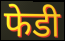
फेडी